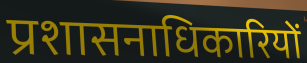
प्रशासनाधिकारियों